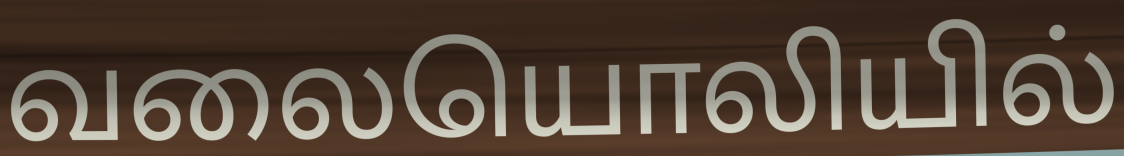
வலையொலியில்